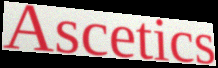
Ascetics